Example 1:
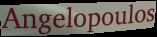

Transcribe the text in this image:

Angelopoulos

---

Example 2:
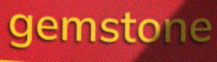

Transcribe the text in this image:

gemstone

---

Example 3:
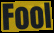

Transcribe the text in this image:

Fool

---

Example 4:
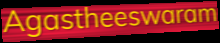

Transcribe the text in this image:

Agastheeswaram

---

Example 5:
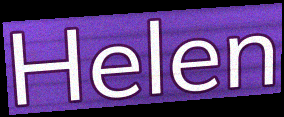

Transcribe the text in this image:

Helen